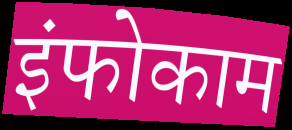
इंफोकाम